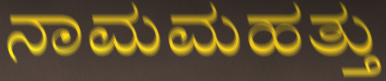
ನಾಮಮಹತ್ತು